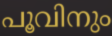
പൂവിനും